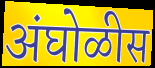
अंघोळीस